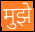
मुझे